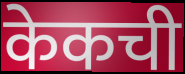
केकची